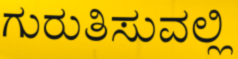
ಗುರುತಿಸುವಲ್ಲಿ